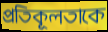
প্রতিকূলতাকে